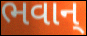
ભવાન્